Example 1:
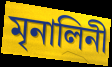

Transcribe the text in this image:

মৃনালিনী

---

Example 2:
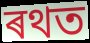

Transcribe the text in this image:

ৰথত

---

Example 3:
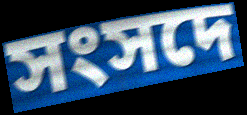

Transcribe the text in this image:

সংসদে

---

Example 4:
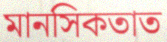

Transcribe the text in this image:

মানসিকতাত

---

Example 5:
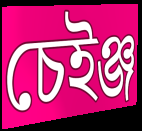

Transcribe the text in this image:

চেইঞ্জ